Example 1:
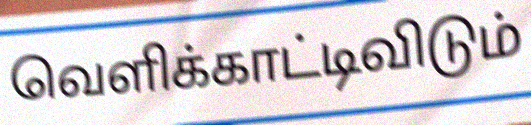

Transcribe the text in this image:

வெளிக்காட்டிவிடும்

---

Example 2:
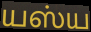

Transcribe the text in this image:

யஸ்ய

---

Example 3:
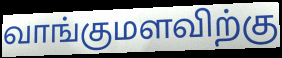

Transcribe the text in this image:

வாங்குமளவிற்கு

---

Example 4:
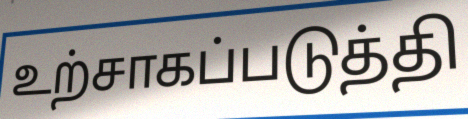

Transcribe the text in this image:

உற்சாகப்படுத்தி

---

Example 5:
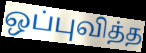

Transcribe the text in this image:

ஒப்புவித்த